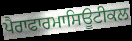
ਪੈਰਾਫਾਰਮਾਸਿਊਟੀਕਲ